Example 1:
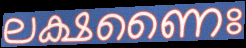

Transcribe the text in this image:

ലക്ഷണൈഃ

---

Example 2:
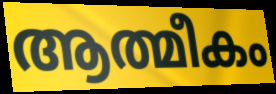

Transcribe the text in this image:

ആത്മീകം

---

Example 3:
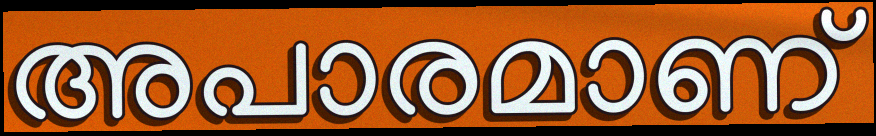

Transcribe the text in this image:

അപാരമാണ്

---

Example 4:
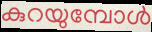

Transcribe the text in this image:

കുറയുമ്പോൾ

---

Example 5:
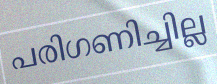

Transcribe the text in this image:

പരിഗണിച്ചില്ല